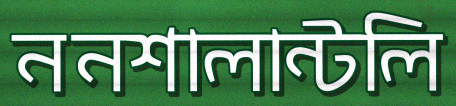
ননশালান্টলি